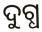
ଦୁଗ୍ଧ